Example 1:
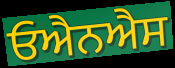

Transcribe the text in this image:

ਓਐਨਐਸ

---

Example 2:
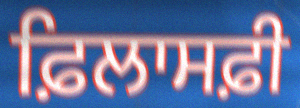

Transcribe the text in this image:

ਫ਼ਿਲਾਸਫ਼ੀ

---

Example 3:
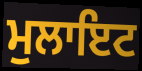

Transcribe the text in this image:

ਮੁਲਾਇਟ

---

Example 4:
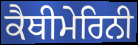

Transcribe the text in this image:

ਕੈਥੀਮੇਰਿਨੀ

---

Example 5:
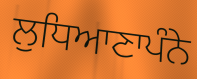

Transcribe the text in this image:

ਲੁਧਿਆਣਾਪੰਨੇ